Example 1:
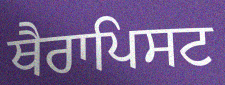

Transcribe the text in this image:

ਥੈਰਾਪਿਸਟ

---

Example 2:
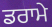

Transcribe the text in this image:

ਡਰਾਮੇ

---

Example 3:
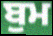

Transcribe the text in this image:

ਬੁਮ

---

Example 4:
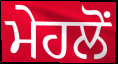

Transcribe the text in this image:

ਮੇਹਲੋਂ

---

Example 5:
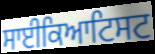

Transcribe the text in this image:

ਸਾਈਕਿਆਟਿਸਟ